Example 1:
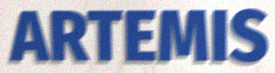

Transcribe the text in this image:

ARTEMIS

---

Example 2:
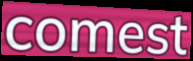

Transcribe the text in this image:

comest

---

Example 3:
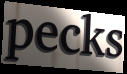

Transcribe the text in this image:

pecks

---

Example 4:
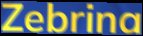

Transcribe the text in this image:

Zebrina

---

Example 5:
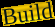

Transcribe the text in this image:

Build